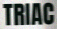
TRIAC